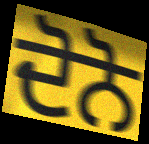
ਦੋਨੋ